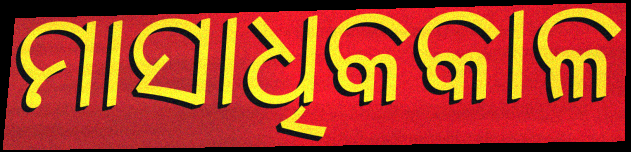
ମାସାଧିକକାଳ